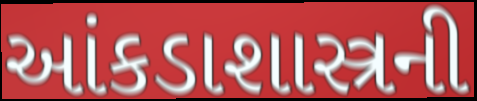
આંકડાશાસ્ત્રની